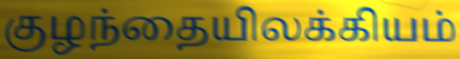
குழந்தையிலக்கியம்